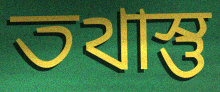
তথাস্তু